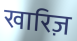
खारिज़